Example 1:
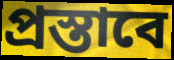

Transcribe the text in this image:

প্রস্তাবে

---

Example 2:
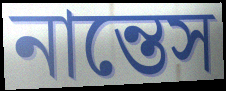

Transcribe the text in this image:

নান্তেস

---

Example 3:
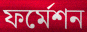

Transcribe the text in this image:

ফর্মেশন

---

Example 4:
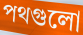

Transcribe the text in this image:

পথগুলো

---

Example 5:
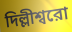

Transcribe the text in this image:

দিল্লীশ্বরো